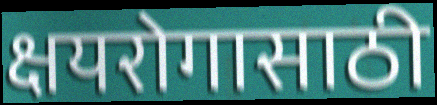
क्षयरोगासाठी